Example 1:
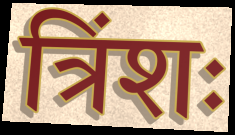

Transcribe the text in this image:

त्रिंशः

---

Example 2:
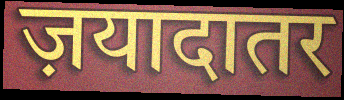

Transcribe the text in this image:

ज़यादातर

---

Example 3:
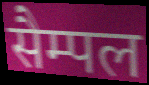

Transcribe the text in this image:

सैम्पल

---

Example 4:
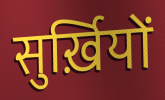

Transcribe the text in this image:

सुर्ख़ियों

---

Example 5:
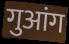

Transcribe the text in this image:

गुआंग